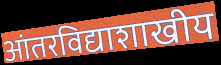
आंतरविद्याशाखीय